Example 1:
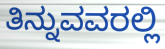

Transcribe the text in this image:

ತಿನ್ನುವವರಲ್ಲಿ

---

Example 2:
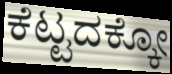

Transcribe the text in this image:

ಕೆಟ್ಟದಕ್ಕೋ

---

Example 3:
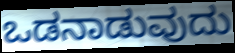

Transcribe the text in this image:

ಒಡನಾಡುವುದು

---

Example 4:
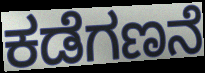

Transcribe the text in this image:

ಕಡೆಗಣನೆ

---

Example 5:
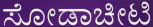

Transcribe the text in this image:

ಸೋಡಾಚೀಟಿ